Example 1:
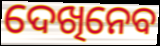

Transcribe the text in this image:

ଦେଖିନେବ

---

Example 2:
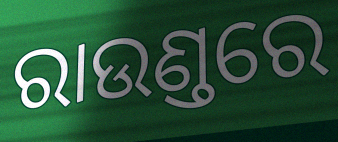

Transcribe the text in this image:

ରାଉଣ୍ଡରେ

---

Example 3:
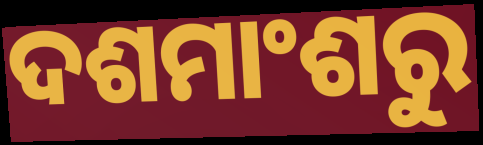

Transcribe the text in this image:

ଦଶମାଂଶରୁ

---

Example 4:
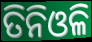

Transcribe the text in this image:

ତିନିଓଳି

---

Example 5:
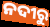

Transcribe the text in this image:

ନଦୀରୁ